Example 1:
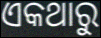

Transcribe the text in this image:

ଏକଥାରୁ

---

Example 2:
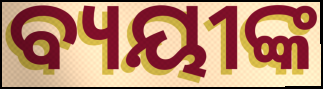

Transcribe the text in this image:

ବ୍ୟୟୀଙ୍କ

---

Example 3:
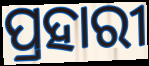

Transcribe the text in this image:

ପ୍ରହାରୀ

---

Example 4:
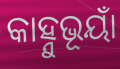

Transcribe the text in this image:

କାହ୍ନୁଭୂୟାଁ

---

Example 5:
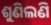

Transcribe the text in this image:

ଶୁଣିଲଣି